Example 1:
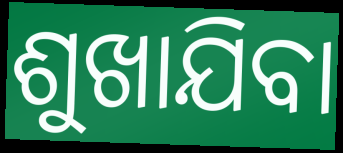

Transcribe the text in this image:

ଶୁଖାଯିବା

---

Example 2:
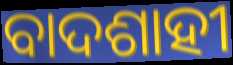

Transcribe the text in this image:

ବାଦଶାହୀ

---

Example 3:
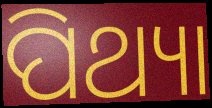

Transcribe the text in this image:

ପିଥ୍ୟା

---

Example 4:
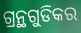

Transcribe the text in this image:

ଗ୍ରନ୍ଥଗୁଡିକର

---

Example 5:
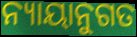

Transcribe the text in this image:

ନ୍ୟାୟାନୁଗତ